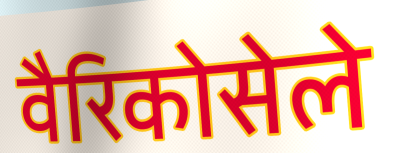
वैरिकोसेले